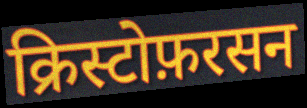
क्रिस्टोफ़रसन